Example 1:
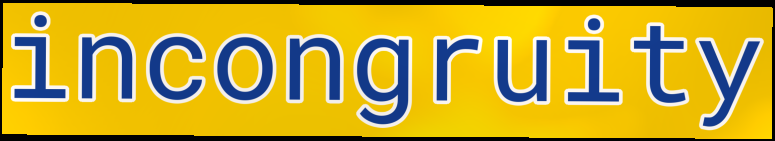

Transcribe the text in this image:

incongruity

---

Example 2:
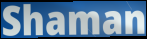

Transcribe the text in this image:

Shaman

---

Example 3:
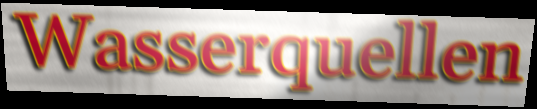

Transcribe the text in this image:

Wasserquellen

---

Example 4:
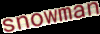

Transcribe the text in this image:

snowman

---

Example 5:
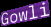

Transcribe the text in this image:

Gowli